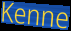
Kenne